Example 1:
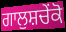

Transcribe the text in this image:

ਗਾਲੁਸ਼ਚੇਂਕੋ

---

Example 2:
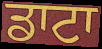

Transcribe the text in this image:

ਡਾਟਾ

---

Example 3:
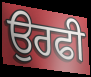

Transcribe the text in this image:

ਉਰਫੀ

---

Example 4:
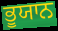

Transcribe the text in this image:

ਭੂਯਾਨ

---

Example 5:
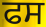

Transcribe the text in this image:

ਫਸ